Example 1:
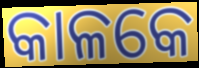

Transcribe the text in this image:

କାଳକେ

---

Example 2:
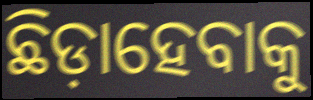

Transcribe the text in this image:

ଛିଡ଼ାହେବାକୁ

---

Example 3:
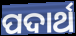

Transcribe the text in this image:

ପଦାର୍ଥ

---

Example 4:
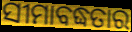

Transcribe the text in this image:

ସୀମାବଦ୍ଧତାର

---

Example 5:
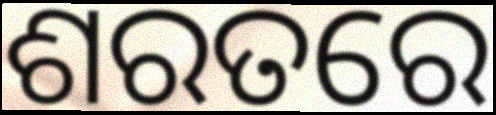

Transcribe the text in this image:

ଶରତରେ